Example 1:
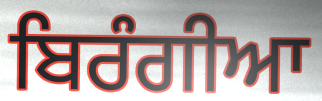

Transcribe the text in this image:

ਬਿਰੰਗੀਆ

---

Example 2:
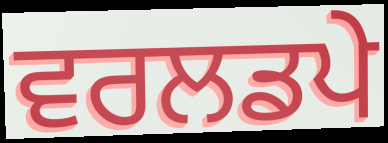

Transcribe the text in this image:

ਵਰਲਡਪੇ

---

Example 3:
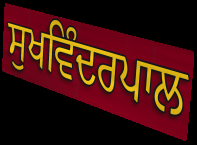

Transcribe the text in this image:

ਸੁਖਵਿੰਦਰਪਾਲ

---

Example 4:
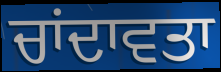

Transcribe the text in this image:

ਚਾਂਦਾਵਤਾ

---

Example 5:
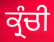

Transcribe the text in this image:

ਕ੍ਰੰਚੀ